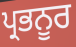
ਪ੍ਰਭਨੂਰ